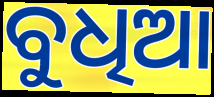
ବୁଧିଆ